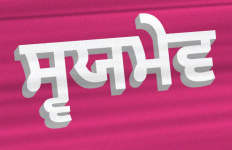
ਸ੍ਵਯਮੇਵ